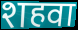
शहवा